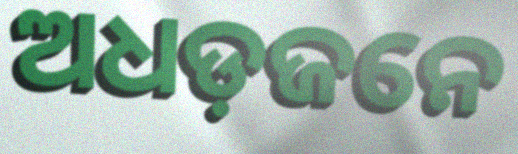
ଅଧଡ଼ଜନେ